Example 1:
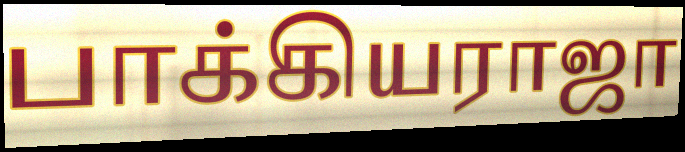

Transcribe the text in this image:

பாக்கியராஜா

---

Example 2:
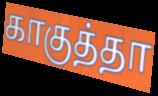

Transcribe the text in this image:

காகுத்தா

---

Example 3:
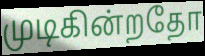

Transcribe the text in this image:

முடிகின்றதோ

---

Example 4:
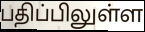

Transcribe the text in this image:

பதிப்பிலுள்ள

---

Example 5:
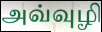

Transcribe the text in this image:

அவ்வுழி